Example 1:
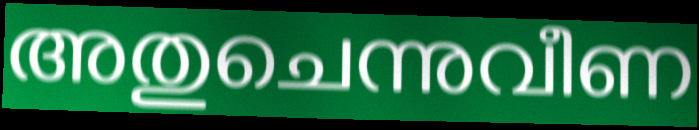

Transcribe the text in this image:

അതുചെന്നുവീണ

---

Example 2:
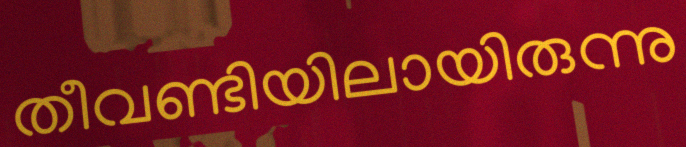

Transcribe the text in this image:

തീവണ്ടിയിലായിരുന്നു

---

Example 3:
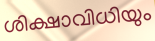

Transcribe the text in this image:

ശിക്ഷാവിധിയും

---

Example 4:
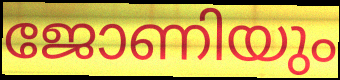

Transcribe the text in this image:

ജോണിയും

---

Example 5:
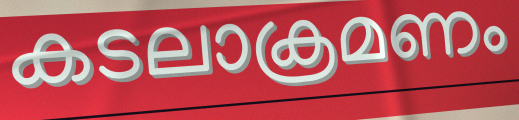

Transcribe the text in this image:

കടലാക്രമണം